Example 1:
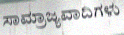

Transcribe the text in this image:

ಸಾಮ್ರಾಜ್ಯವಾದಿಗಳು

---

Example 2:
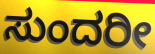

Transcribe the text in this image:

ಸುಂದರೀ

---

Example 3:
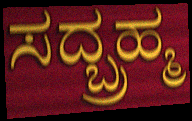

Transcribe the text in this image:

ಸದ್ಬ್ರಹ್ಮ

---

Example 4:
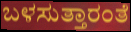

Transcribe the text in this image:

ಬಳಸುತ್ತಾರಂತೆ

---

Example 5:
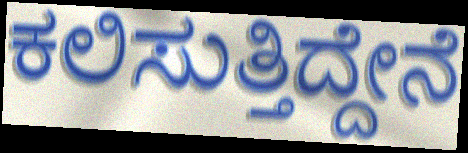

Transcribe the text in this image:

ಕಲಿಸುತ್ತಿದ್ದೇನೆ